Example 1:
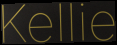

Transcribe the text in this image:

Kellie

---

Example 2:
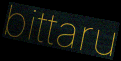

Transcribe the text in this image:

bittaru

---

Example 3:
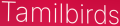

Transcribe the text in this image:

Tamilbirds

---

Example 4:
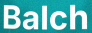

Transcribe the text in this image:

Balch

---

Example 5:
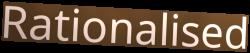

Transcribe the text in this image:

Rationalised